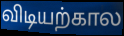
விடியற்கால